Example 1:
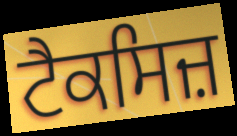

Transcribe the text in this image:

ਟੈਕਸਿਜ਼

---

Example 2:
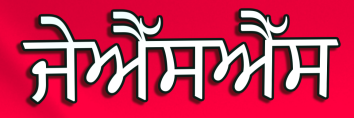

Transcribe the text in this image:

ਜੇਐੱਸਐੱਸ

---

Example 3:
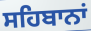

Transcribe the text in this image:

ਸਹਿਬਾਨਾਂ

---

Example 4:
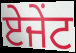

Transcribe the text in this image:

ਏਜੇਂਟ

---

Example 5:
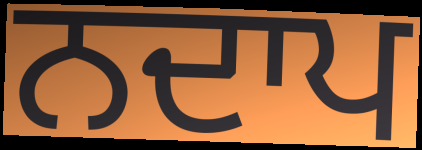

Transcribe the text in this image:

ਨਦਾਪ